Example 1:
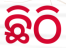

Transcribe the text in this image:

ଛିଠି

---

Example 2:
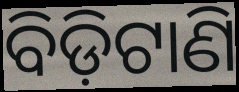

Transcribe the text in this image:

ବିଡ଼ିଟାଣି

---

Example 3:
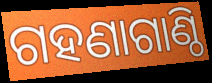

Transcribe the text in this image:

ଗହଣାଗାଣ୍ଠି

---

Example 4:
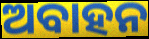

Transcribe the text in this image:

ଅବାହନ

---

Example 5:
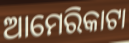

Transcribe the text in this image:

ଆମେରିକାଟା